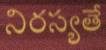
నిరస్యతే